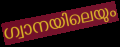
ഗ്വാനയിലെയും